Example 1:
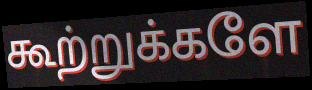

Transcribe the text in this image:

கூற்றுக்களே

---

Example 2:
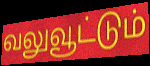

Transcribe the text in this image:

வலுவூட்டும்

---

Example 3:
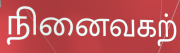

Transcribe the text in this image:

நினைவகற்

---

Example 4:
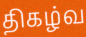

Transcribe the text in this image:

திகழ்வ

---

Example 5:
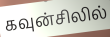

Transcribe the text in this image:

கவுன்சிலில்